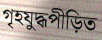
গৃহযুদ্ধপীড়িত